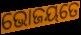
ଭୋଜୟତେ